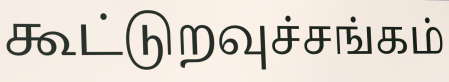
கூட்டுறவுச்சங்கம்